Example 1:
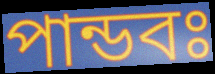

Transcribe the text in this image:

পান্ডবঃ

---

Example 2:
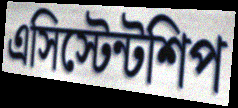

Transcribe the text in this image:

এসিস্টেন্টশিপ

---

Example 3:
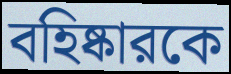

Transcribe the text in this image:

বহিষ্কারকে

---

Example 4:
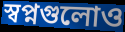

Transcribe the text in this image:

স্বপ্নগুলোও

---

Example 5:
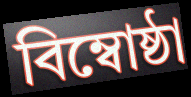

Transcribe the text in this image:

বিম্বোষ্ঠা